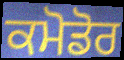
ਕਮੋਡੋਰ